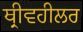
ਥ੍ਰੀਵਹੀਲਰ